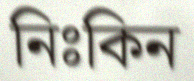
নিঃকিন